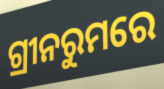
ଗ୍ରୀନରୁମରେ